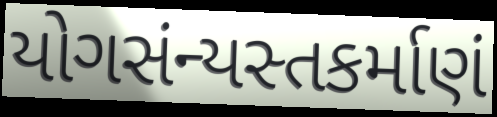
યોગસંન્યસ્તકર્માણં